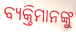
ବ୍ୟକ୍ତିମାନଙ୍କୁ